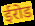
ईरोड